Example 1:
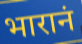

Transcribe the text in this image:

भारानं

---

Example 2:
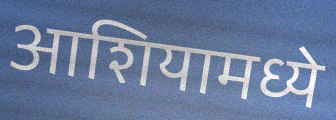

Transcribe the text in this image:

आशियामध्ये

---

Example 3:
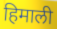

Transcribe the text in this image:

हिमाली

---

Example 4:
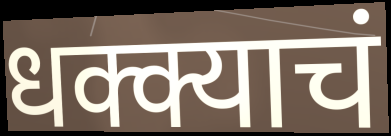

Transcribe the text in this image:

धक्क्याचं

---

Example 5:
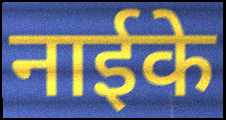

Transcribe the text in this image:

नाईके